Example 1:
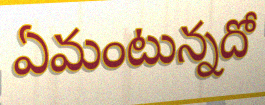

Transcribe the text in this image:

ఏమంటున్నదో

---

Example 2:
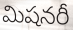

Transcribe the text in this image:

మిషనరీ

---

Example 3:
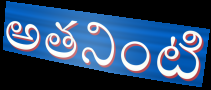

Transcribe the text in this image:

అతనింటి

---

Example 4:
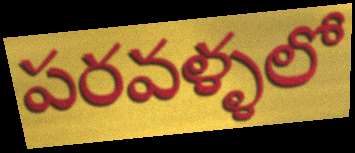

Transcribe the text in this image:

పరవళ్ళలో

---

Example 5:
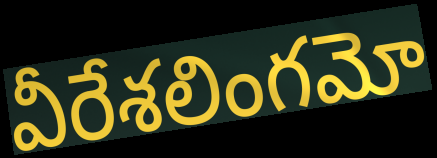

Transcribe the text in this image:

వీరేశలింగమో